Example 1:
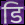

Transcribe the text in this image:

डि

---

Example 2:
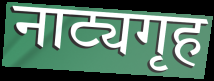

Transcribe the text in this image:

नाट्यगृह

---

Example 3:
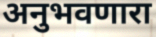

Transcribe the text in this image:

अनुभवणारा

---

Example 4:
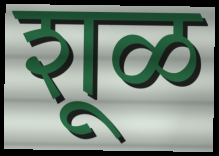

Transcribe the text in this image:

शूळ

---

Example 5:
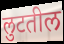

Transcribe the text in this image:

लुटतील